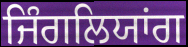
ਜਿੰਗਲਿਯਾਂਗ